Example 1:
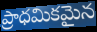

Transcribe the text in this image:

ప్రాధమికమైన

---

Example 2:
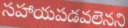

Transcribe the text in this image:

సహాయపడవలెనని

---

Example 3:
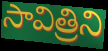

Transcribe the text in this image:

సావిత్రిని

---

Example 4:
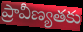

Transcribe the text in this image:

ప్రావీణ్యతకు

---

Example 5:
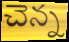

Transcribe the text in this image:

చెన్న